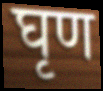
घृण